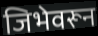
जिभेवरून